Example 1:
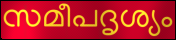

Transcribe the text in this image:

സമീപദൃശ്യം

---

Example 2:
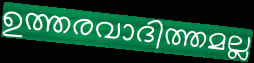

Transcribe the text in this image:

ഉത്തരവാദിത്തമല്ല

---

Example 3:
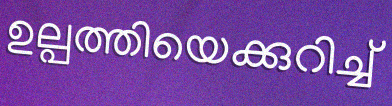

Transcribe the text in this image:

ഉല്പത്തിയെക്കുറിച്ച്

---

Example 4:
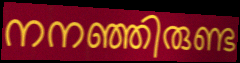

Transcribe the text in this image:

നനഞ്ഞിരുണ്ട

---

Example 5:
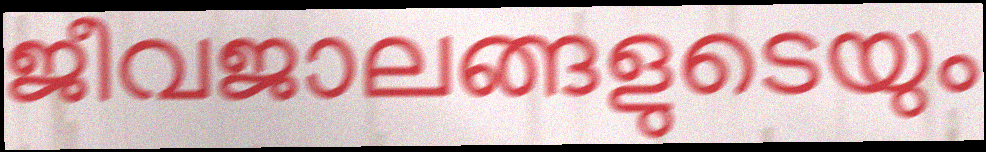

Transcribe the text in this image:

ജീവജാലങ്ങളുടെയും